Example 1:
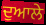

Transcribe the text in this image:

ਦੁਆਲੇ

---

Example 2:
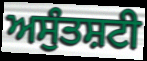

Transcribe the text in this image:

ਅਸੁੰਤਸ਼ਟੀ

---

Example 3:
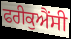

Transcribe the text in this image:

ਫਰੀਕੁਐਂਸੀ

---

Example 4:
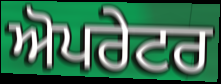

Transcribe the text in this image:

ਅੋਪਰੇਟਰ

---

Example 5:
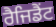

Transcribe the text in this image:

ਰੈਜਿਡੈਂਟ